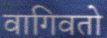
वागिवतो